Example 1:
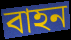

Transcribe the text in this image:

বাহন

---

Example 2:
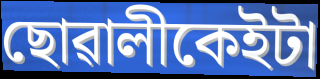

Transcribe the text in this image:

ছোৱালীকেইটা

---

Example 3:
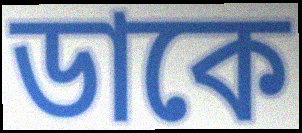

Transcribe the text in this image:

ডাকে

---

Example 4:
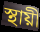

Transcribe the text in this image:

স্থায়ী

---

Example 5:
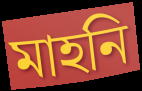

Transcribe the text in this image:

মাহনি